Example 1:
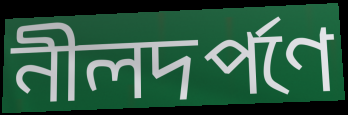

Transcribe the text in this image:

নীলদর্পণে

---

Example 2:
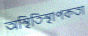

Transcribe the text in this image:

অস্থিতিস্থাপকতা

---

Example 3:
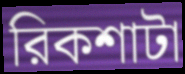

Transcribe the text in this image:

রিকশাটা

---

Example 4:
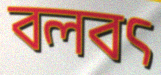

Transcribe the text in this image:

বলবৎ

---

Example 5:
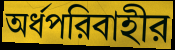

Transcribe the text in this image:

অর্ধপরিবাহীর